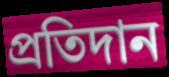
প্রতিদান